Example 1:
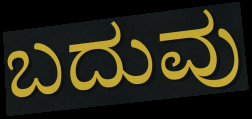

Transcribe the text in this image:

ಬದುವು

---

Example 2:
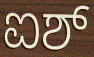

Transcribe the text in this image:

ಐಶ್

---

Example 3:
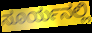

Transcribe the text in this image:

ಸೂರ್ಯನಲ್ಲಿ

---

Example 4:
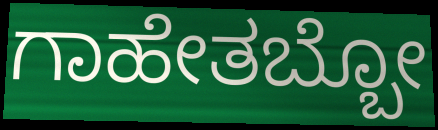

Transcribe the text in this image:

ಗಾಹೇತಬ್ಬೋ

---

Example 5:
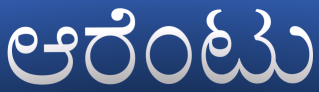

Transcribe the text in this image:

ಆರೆಂಟು